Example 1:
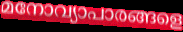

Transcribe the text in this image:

മനോവ്യാപാരങ്ങളെ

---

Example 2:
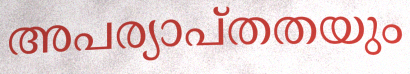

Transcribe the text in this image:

അപര്യാപ്തതയും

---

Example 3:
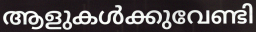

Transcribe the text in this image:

ആളുകൾക്കുവേണ്ടി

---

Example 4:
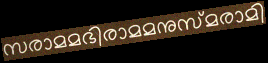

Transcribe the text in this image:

സരാമമഭിരാമമനുസ്മരാമി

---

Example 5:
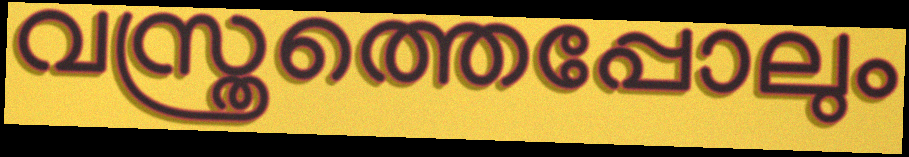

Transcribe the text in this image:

വസ്ത്രത്തെപ്പോലും